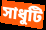
সাধুটি